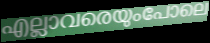
എല്ലാവരെയുംപോലെ